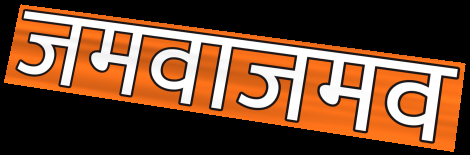
जमवाजमव